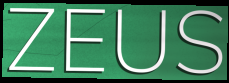
ZEUS